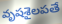
వృషశైలపతే